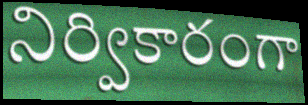
నిర్వికారంగా